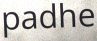
padhe